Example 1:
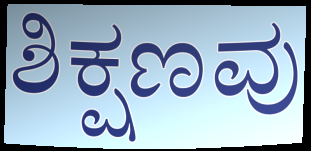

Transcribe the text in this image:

ಶಿಕ್ಷಣವು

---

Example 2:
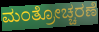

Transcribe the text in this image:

ಮಂತ್ರೋಚ್ಚರಣೆ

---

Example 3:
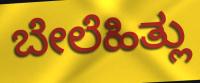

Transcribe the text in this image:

ಬೇಲೆಹಿತ್ಲು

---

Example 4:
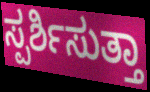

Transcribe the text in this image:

ಸ್ಪರ್ಶಿಸುತ್ತಾ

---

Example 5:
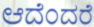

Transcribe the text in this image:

ಆದೆಂದರೆ